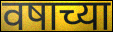
वषाच्या